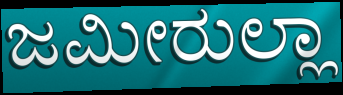
ಜಮೀರುಲ್ಲಾ